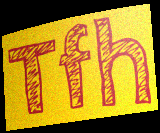
Tfh